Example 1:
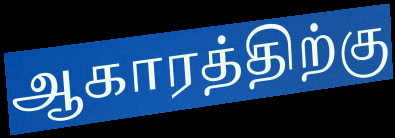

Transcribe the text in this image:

ஆகாரத்திற்கு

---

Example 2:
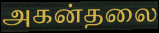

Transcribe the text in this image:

அகன்தலை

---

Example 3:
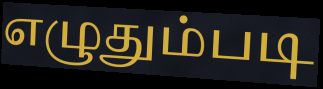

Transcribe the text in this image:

எழுதும்படி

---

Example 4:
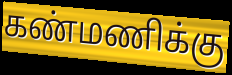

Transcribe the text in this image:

கண்மணிக்கு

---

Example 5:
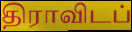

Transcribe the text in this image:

திராவிடப்